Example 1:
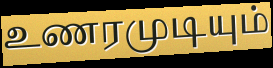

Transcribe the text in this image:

உணரமுடியும்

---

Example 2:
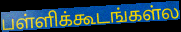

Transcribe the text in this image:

பள்ளிக்கூடங்கள்ல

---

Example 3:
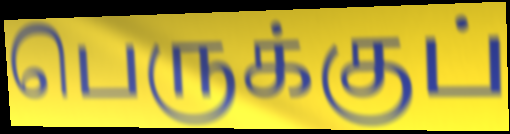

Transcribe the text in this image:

பெருக்குப்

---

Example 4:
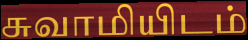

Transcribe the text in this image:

சுவாமியிடம்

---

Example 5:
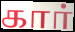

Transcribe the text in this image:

கார்